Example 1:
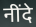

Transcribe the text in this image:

नींदे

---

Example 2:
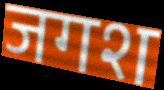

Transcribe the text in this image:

जगश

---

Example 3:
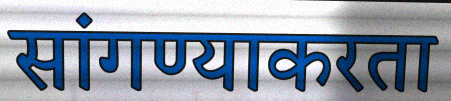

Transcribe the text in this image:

सांगण्याकरता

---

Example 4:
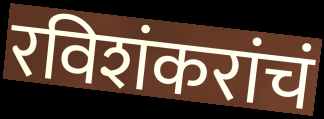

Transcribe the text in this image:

रविशंकरांचं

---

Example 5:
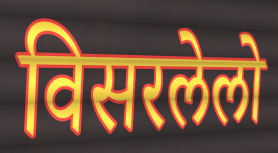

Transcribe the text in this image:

विसरलेलो